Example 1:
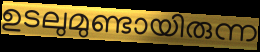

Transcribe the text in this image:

ഉടലുമുണ്ടായിരുന്ന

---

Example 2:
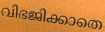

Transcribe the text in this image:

വിഭജിക്കാതെ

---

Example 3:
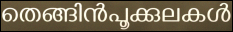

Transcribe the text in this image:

തെങ്ങിൻപൂക്കുലകൾ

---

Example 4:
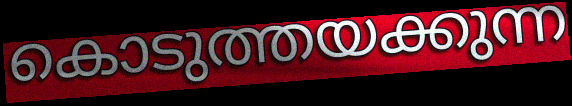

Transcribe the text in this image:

കൊടുത്തയക്കുന്ന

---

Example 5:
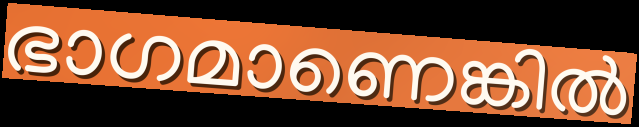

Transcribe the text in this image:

ഭാഗമാണെങ്കിൽ